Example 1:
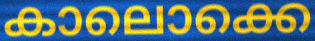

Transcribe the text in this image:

കാലൊക്കെ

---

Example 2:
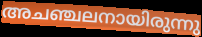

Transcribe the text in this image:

അചഞ്ചലനായിരുന്നു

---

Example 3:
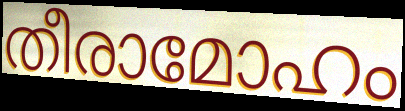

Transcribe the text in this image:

തീരാമോഹം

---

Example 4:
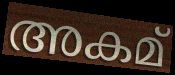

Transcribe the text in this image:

അകമ്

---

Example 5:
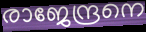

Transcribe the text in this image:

രാജേന്ദ്രനെ